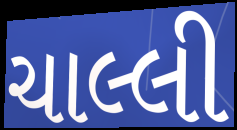
ચાલ્લી